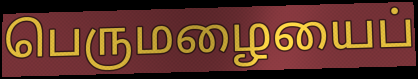
பெருமழையைப்